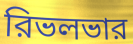
রিভলভার